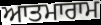
ਆਤਮਾਰਾਮ